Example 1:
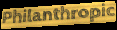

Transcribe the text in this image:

Philanthropic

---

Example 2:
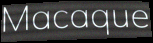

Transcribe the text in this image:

Macaque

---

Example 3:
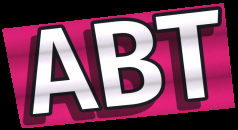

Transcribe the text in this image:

ABT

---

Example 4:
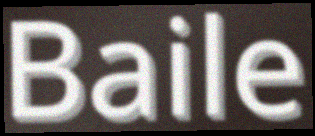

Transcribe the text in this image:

Baile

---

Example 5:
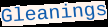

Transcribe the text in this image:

Gleanings